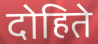
दोहिते